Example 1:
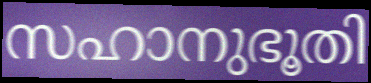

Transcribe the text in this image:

സഹാനുഭൂതി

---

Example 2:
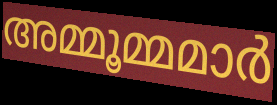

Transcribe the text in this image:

അമ്മൂമ്മമാർ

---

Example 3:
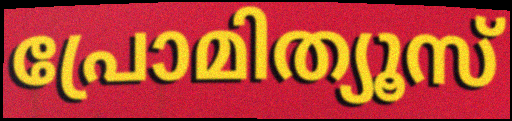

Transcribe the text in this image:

പ്രോമിത്യൂസ്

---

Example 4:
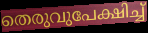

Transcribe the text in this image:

തെരുവുപേക്ഷിച്ച്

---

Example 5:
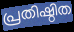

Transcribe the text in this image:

പ്രതിഷ്ഠിത